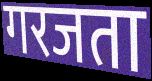
गरजता